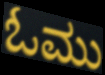
ಓಮು